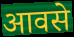
आवसे